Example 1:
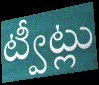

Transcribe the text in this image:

ట్వీట్లు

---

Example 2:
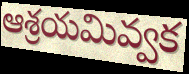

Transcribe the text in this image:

ఆశ్రయమివ్వక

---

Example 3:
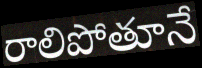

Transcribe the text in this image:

రాలిపోతూనే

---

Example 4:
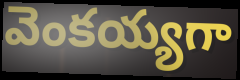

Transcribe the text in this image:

వెంకయ్యగా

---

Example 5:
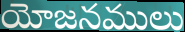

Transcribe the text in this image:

యోజనములు